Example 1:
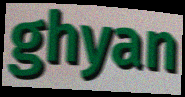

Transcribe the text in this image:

ghyan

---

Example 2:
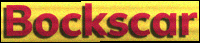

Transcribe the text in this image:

Bockscar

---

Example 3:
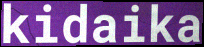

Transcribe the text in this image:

kidaika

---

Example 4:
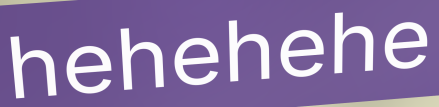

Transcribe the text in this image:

hehehehe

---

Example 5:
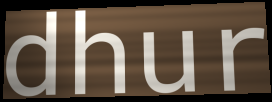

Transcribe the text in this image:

dhur